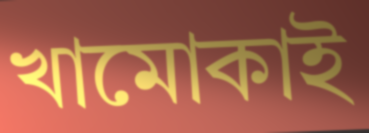
খামোকাই